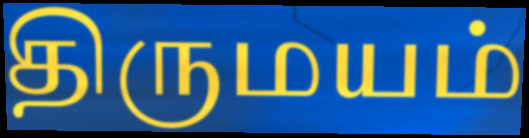
திருமயம்